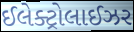
ઈલેક્ટ્રોલાઈઝર